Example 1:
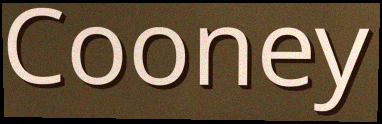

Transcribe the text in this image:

Cooney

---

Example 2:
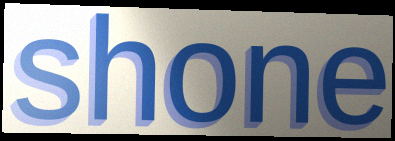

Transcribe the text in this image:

shone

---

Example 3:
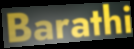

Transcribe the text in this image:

Barathi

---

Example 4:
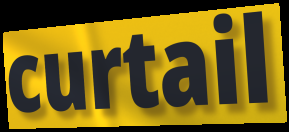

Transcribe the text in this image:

curtail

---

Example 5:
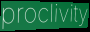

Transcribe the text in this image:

proclivity